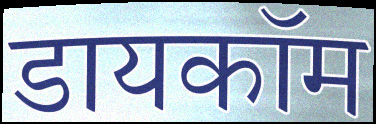
डायकॉम